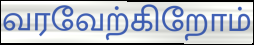
வரவேற்கிறோம்